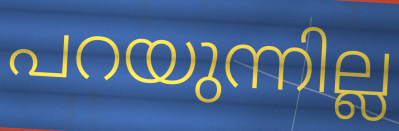
പറയുന്നില്ല